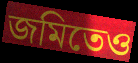
জমিতেও